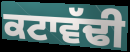
ਕਟਾਵੱਢੀ